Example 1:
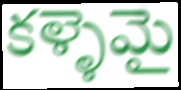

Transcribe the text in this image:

కళ్ళెమై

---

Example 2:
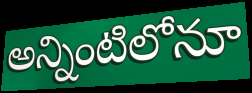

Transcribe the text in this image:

అన్నింటిలోనూ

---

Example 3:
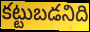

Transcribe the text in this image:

కట్టుబడనిది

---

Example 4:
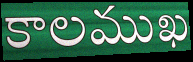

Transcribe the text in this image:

కాలముఖ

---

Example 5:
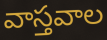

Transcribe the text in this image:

వాస్తవాల